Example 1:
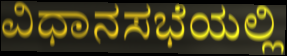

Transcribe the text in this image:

ವಿಧಾನಸಭೆಯಲ್ಲಿ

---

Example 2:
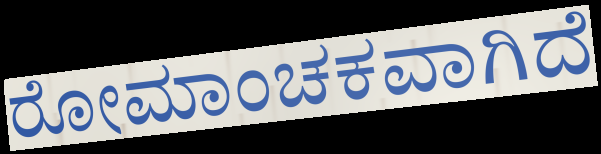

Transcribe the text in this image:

ರೋಮಾಂಚಕವಾಗಿದೆ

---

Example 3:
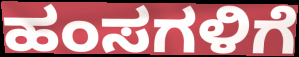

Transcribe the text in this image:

ಹಂಸಗಳಿಗೆ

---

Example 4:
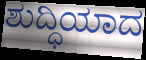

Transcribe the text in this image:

ಶುದ್ಧಿಯಾದ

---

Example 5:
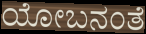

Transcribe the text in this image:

ಯೋಬನಂತೆ